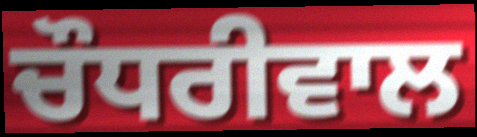
ਚੌਧਰੀਵਾਲ